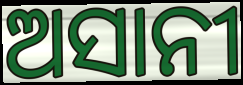
ଅସାନୀ